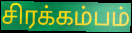
சிரக்கம்பம்